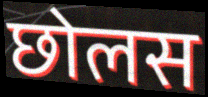
छोलस